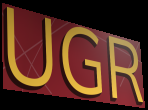
UGR